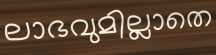
ലാഭവുമില്ലാതെ